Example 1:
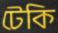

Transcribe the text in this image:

টেকি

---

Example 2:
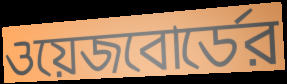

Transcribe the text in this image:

ওয়েজবোর্ডের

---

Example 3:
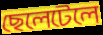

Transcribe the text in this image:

ছেলেটেলে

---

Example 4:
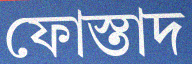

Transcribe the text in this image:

ফোস্তাদ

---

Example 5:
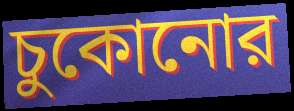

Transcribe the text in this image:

চুকোনোর